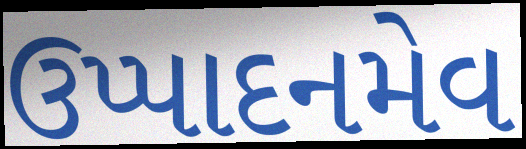
ઉપ્પાદનમેવ